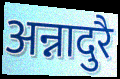
अन्नादुरै